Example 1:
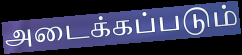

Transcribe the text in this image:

அடைக்கப்படும்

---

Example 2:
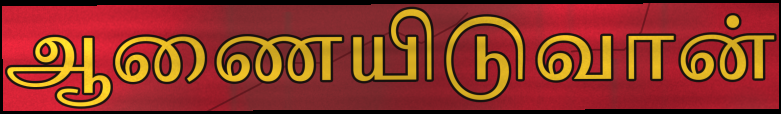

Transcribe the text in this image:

ஆணையிடுவான்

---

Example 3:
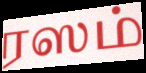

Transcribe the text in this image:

ரஸம்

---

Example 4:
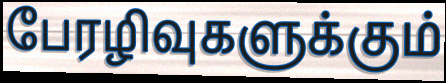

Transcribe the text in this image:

பேரழிவுகளுக்கும்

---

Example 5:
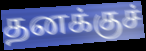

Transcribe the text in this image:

தனக்குச்